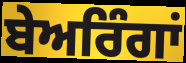
ਬੇਅਰਿੰਗਾਂ